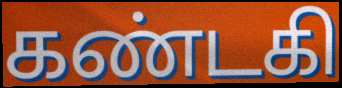
கண்டகி